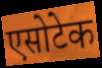
एसोटेक